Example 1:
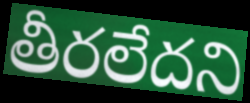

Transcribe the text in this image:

తీరలేదని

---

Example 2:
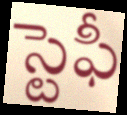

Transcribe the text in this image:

స్టెఫీ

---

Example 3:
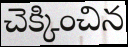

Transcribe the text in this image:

చెక్కించిన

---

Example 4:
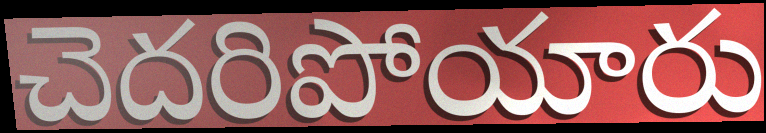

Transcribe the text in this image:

చెదరిపోయారు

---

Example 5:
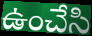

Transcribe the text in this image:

ఉంచేసి